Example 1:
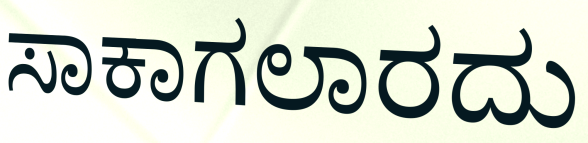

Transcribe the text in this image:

ಸಾಕಾಗಲಾರದು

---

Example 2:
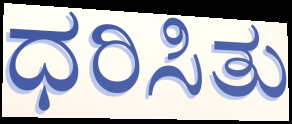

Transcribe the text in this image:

ಧರಿಸಿತು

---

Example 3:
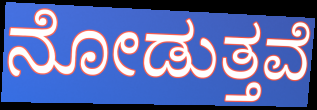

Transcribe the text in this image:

ನೋಡುತ್ತವೆ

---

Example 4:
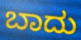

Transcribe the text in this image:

ಬಾದು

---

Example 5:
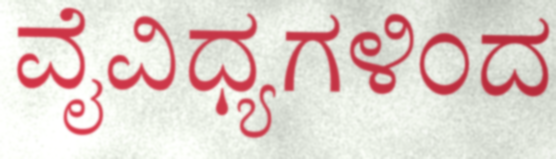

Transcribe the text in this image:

ವೈವಿಧ್ಯಗಳಿಂದ